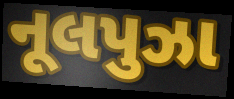
નૂલપુઝા